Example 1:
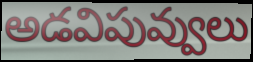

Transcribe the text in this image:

అడవిపువ్వులు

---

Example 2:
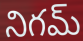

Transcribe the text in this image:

నిగమ్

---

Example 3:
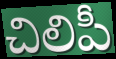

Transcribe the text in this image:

చిలిపీ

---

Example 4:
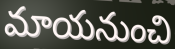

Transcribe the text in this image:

మాయనుంచి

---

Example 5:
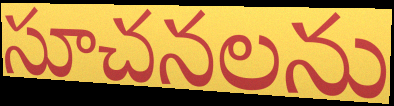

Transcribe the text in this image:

సూచనలను